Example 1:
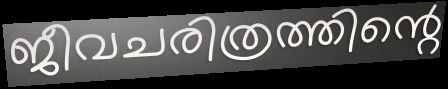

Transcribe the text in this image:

ജീവചരിത്രത്തിന്റെ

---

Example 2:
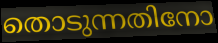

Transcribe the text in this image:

തൊടുന്നതിനോ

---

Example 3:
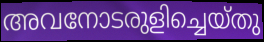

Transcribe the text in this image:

അവനോടരുളിച്ചെയ്തു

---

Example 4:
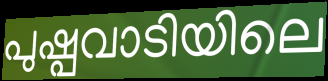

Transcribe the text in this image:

പുഷ്പവാടിയിലെ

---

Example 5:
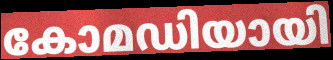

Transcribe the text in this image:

കോമഡിയായി